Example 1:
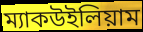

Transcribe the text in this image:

ম্যাকউইলিয়াম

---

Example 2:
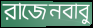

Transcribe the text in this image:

রাজেনবাবু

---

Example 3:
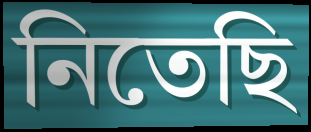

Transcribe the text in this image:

নিতেছি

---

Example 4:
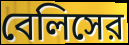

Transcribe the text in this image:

বেলিসের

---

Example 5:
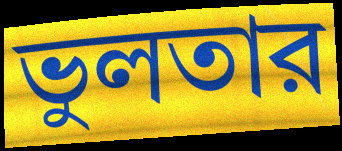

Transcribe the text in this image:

ভুলতার